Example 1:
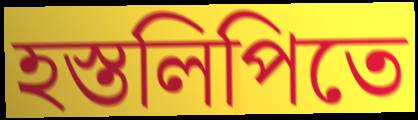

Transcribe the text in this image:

হস্তলিপিতে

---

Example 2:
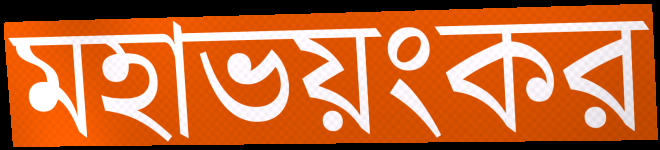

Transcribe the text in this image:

মহাভয়ংকর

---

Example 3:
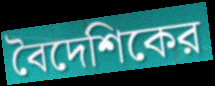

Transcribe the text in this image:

বৈদেশিকের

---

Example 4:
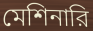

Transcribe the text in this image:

মেশিনারি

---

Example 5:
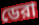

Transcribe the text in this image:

ডেরা